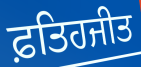
ਫ਼ਤਿਹਜੀਤ